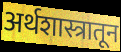
अर्थशास्त्रातून